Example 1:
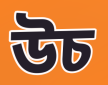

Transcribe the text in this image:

উচ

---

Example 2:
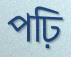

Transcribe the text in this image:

পঢ়ি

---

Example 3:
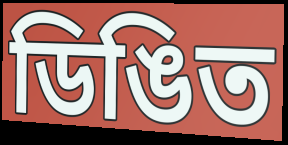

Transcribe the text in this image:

ডিঙিত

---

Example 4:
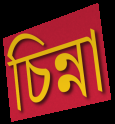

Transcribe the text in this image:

চিন্না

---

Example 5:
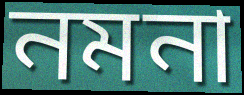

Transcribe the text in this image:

নমনা